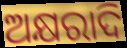
ଅକ୍ଷରାଦି